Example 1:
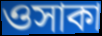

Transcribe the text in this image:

ওসাকা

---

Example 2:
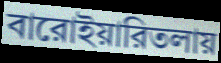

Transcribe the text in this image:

বারোইয়ারিতলায়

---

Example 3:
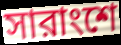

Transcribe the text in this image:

সারাংশে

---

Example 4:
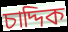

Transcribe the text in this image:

চাদ্দিক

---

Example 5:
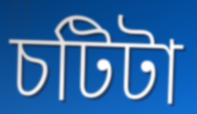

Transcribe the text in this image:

চটিটা